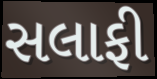
સલાફી